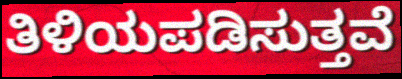
ತಿಳಿಯಪಡಿಸುತ್ತವೆ